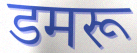
डमरू